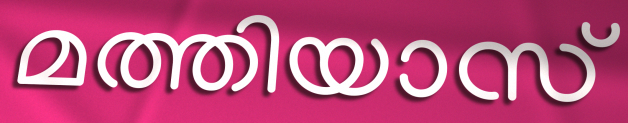
മത്തിയാസ്